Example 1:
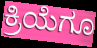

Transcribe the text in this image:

ಕ್ರಿಯೆಗೂ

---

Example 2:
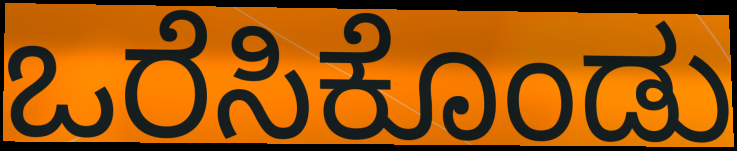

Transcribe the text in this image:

ಒರೆಸಿಕೊಂಡು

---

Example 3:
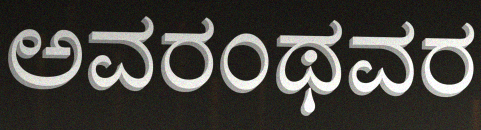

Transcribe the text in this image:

ಅವರಂಥವರ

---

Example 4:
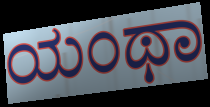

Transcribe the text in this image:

ಯಂಥಾ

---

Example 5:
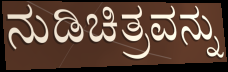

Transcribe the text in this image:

ನುಡಿಚಿತ್ರವನ್ನು